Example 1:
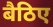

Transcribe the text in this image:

बैठिए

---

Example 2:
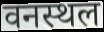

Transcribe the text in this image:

वनस्थल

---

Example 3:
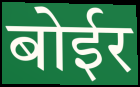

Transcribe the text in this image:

बोईर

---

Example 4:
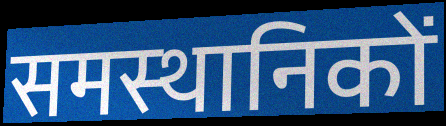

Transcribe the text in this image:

समस्थानिकों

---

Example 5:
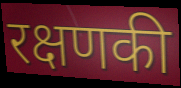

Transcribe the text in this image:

रक्षणकी